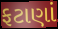
ફટાણાં